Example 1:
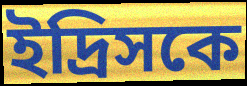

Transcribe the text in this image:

ইদ্রিসকে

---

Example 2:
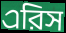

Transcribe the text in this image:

এরিস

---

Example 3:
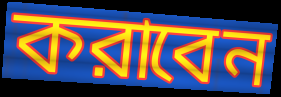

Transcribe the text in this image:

করাবেন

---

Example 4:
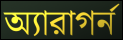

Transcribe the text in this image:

অ্যারাগর্ন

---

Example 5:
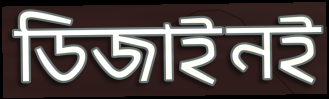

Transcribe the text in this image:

ডিজাইনই